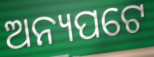
ଅନ୍ୟପଟେ